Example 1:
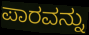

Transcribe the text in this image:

ಪಾರವನ್ನು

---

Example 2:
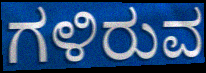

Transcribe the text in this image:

ಗಳಿರುವ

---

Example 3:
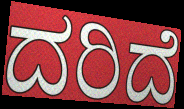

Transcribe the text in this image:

ದರಿದೆ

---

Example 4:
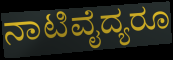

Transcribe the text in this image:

ನಾಟಿವೈದ್ಯರೂ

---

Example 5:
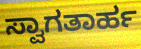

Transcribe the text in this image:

ಸ್ವಾಗತಾರ್ಹ